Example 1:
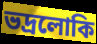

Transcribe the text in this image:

ভদ্রলোকি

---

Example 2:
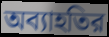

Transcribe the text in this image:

অব্যাহতির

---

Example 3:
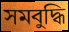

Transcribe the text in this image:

সমবুদ্ধি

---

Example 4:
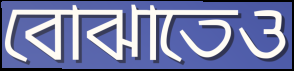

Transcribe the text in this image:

বোঝাতেও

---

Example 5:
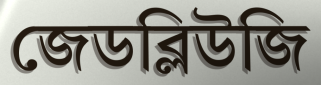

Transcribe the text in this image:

জেডব্লিউজি